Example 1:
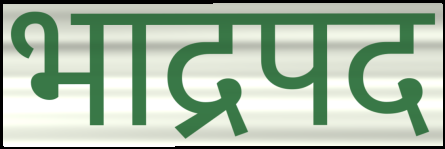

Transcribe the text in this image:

भाद्रपद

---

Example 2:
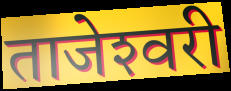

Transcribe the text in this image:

ताजेश्वरी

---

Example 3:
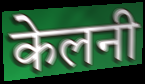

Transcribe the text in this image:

केलनी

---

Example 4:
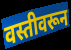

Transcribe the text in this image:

वस्तीवरून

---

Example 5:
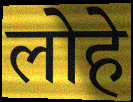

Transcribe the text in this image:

लोहे